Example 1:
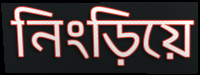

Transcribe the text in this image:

নিংড়িয়ে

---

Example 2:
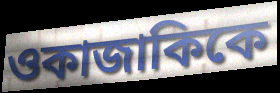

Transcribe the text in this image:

ওকাজাকিকে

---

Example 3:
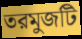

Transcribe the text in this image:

তরমুজটি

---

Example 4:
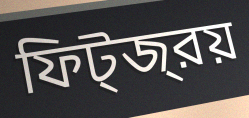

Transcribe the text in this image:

ফিট্‌জ্‌রয়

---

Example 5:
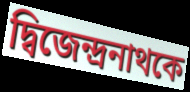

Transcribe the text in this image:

দ্বিজেন্দ্রনাথকে